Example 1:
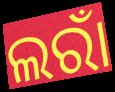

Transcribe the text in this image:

ଲରାଁ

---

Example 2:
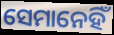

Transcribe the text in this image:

ସେମାନେହିଁ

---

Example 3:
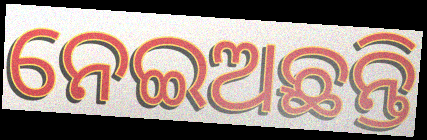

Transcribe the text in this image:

ନେଇଅଛନ୍ତି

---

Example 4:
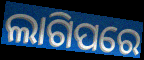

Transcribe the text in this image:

ଲାଗିପରେ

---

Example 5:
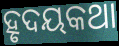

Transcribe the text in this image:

ହୃଦୟକଥା